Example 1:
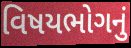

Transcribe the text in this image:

વિષયભોગનું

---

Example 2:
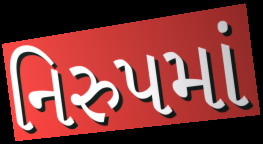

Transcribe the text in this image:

નિરુપમાં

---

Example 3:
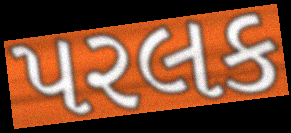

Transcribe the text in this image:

પરલક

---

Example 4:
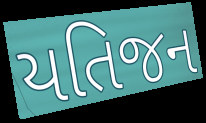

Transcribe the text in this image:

યતિજન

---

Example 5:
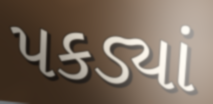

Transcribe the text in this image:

પકડ્યાં